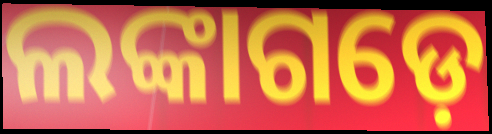
ଲଙ୍କାଗଡ଼େ